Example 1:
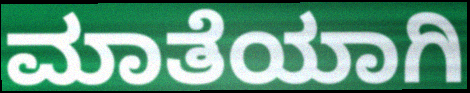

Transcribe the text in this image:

ಮಾತೆಯಾಗಿ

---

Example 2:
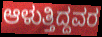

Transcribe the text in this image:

ಆಳುತ್ತಿದ್ದವರ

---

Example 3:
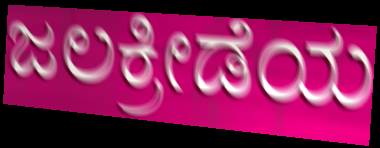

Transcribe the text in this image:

ಜಲಕ್ರೀಡೆಯ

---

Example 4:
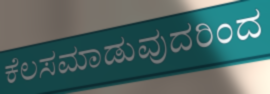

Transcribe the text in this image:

ಕೆಲಸಮಾಡುವುದರಿಂದ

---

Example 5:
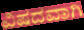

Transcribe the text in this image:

ವಿಷದವಾಗಿ